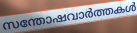
സന്തോഷവാർത്തകൾ